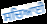
ਸਚਿਆਈ